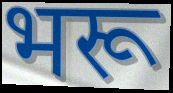
भरू